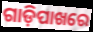
ଗାଡ଼ିପାଖରେ